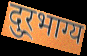
दुर्भाग्य